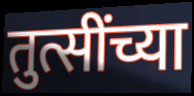
तुत्सींच्या